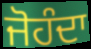
ਜੋਹੰਦਾ